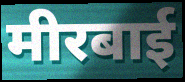
मीरबाई